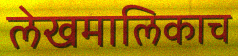
लेखमालिकाच